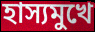
হাস্যমুখে